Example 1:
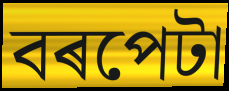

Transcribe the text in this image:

বৰপেটা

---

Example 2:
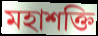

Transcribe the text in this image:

মহাশক্তি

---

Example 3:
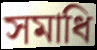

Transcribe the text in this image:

সমাধি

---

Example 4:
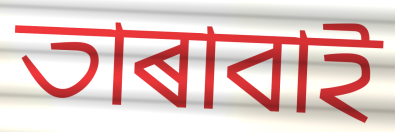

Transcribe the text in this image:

তাৰাবাই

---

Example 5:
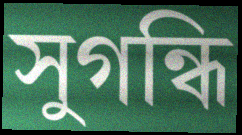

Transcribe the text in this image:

সুগন্ধি